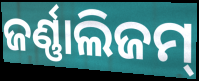
ଜର୍ଣ୍ଣାଲିଜମ୍